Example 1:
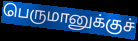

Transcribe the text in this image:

பெருமானுக்குச்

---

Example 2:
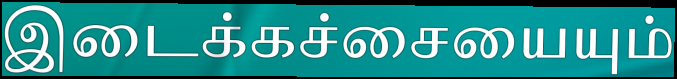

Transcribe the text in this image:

இடைக்கச்சையையும்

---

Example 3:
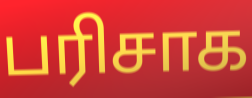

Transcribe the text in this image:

பரிசாக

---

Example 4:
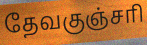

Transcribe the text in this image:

தேவகுஞ்சரி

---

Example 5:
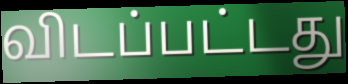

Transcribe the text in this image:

விடப்பட்டது